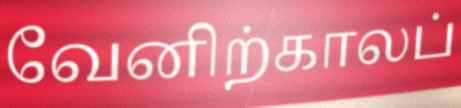
வேனிற்காலப்